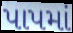
પાપમાં